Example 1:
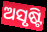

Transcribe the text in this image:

ଅସୃଷ୍ଟି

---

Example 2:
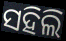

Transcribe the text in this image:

ସହିଲି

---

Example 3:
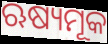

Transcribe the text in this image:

ଋଷ୍ୟମୂକ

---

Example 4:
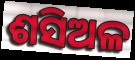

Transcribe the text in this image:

ଶସିଅଳ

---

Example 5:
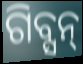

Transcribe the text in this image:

ଗିବ୍ସନ୍